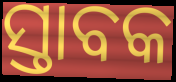
ସ୍ତାବକ